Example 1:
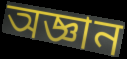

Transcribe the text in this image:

অজ্ঞান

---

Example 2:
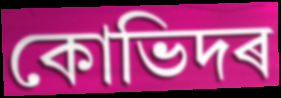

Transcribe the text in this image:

কোভিদৰ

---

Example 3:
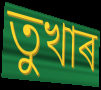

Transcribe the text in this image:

তুখাৰ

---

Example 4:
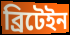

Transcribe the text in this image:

ব্ৰিটেইন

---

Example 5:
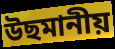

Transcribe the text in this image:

উছমানীয়